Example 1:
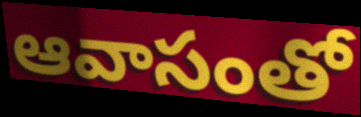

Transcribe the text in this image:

ఆవాసంతో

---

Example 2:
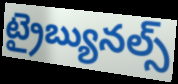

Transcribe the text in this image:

ట్రైబ్యునల్స్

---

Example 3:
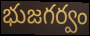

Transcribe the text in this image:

భుజగర్వం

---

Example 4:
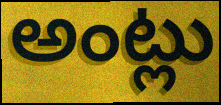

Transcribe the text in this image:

అంట్లు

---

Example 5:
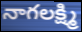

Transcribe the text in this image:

నాగలక్ష్మి